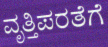
ವೃತ್ತಿಪರತೆಗೆ